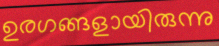
ഉരഗങ്ങളായിരുന്നു